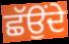
ਛੱਉਂਦੇ